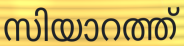
സിയാറത്ത്